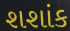
શશાંક